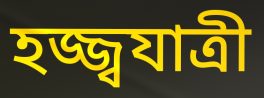
হজ্জ্বযাত্রী